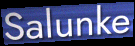
Salunke